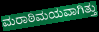
ಮರಾಠಿಮಯವಾಗಿತ್ತು